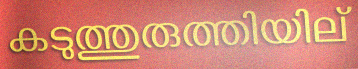
കടുത്തുരുത്തിയില്